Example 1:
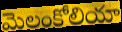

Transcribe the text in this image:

మెలంకోలియా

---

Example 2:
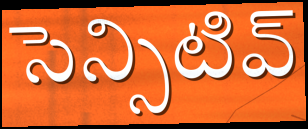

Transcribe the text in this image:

సెన్సిటివ్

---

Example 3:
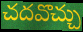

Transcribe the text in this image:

చదవొచ్చు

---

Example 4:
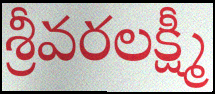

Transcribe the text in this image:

శ్రీవరలక్ష్మీ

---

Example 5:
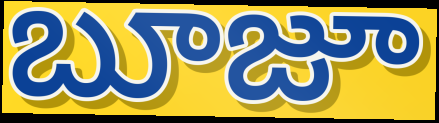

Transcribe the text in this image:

బూజూ